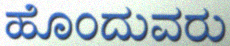
ಹೊಂದುವರು